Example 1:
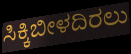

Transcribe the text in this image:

ಸಿಕ್ಕಿಬೀಳದಿರಲು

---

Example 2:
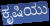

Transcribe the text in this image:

ಕೃಷಿಯು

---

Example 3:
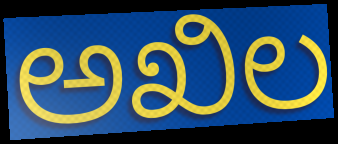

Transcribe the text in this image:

ಅಖಿಲ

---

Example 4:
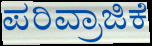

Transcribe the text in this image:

ಪರಿವ್ರಾಜಿಕೆ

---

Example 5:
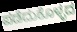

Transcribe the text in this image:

ಪಡೆದುಕೊಳ್ಳದ